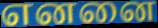
எனனை